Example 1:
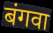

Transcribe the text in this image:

बंगवा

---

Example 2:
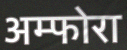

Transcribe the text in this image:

अम्फोरा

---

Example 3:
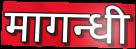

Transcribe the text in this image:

मागन्धी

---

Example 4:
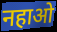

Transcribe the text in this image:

नहाओ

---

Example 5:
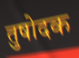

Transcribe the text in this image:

तुषोदक